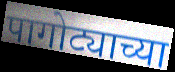
पागोट्याच्या